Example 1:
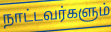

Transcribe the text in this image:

நாட்டவர்களும்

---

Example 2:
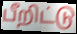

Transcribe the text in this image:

பீறிட்டு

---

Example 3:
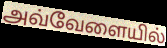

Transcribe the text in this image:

அவ்வேளையில்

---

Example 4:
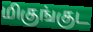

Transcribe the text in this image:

மிகுங்குட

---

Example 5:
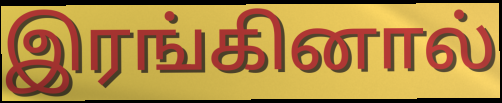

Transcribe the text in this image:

இரங்கினால்